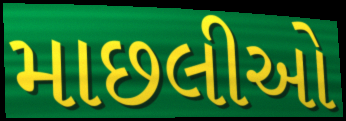
માછલીઓ